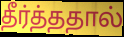
தீர்த்ததால்